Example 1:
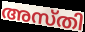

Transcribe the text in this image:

അസ്തി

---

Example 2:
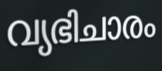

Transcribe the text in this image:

വ്യഭിചാരം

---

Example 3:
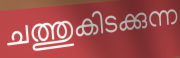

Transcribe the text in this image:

ചത്തുകിടക്കുന്ന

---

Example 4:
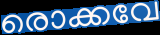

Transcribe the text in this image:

രൊക്കവേ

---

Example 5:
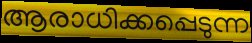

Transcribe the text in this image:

ആരാധിക്കപ്പെടുന്ന